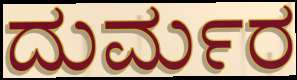
ದುರ್ಮರ